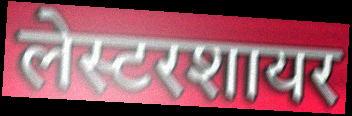
लेस्टरशायर